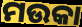
ମଉକା